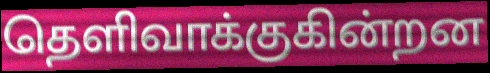
தெளிவாக்குகின்றன